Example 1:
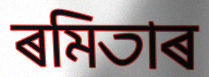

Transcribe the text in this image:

ৰমিতাৰ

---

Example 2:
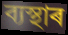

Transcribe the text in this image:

ব্যস্থাৰ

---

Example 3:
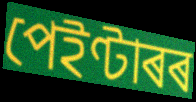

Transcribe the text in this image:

পেইণ্টাৰৰ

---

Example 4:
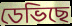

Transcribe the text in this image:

ডেভিছে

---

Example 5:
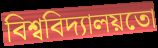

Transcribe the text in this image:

বিশ্ববিদ্যালয়তো